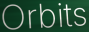
Orbits